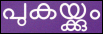
പുകയ്ക്കും